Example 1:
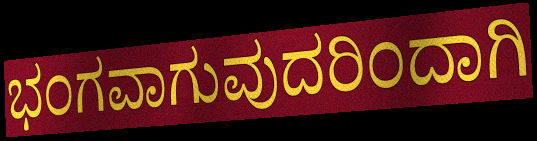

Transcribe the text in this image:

ಭಂಗವಾಗುವುದರಿಂದಾಗಿ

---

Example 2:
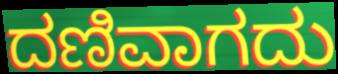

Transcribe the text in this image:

ದಣಿವಾಗದು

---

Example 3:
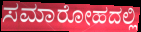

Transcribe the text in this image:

ಸಮಾರೋಹದಲ್ಲಿ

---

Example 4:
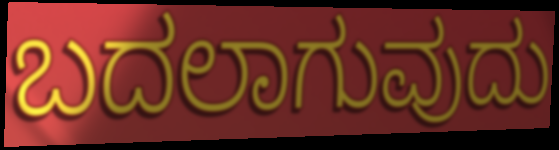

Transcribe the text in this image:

ಬದಲಾಗುವುದು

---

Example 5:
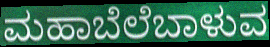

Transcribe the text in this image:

ಮಹಾಬೆಲೆಬಾಳುವ